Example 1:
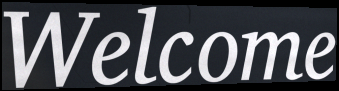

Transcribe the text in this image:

Welcome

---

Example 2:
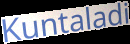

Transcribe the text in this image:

Kuntaladi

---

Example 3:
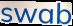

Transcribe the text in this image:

swab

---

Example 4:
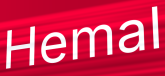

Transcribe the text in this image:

Hemal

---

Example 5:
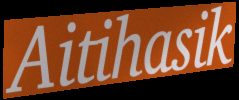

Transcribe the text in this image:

Aitihasik